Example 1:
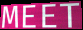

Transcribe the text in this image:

MEET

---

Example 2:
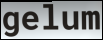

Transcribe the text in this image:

gelum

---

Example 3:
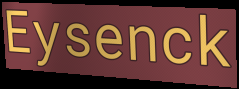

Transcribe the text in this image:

Eysenck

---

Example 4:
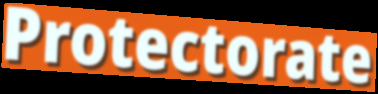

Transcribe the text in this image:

Protectorate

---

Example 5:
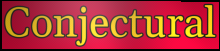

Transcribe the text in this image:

Conjectural